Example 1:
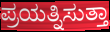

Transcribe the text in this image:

ಪ್ರಯತ್ನಿಸುತ್ತಾ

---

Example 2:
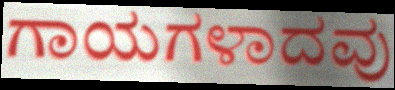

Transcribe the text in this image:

ಗಾಯಗಳಾದವು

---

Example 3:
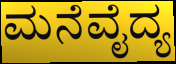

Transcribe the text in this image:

ಮನೆವೈದ್ಯ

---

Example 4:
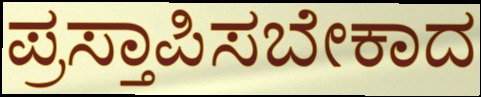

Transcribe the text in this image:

ಪ್ರಸ್ತಾಪಿಸಬೇಕಾದ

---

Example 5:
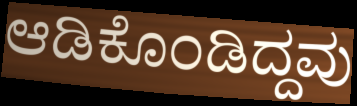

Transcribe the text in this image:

ಆಡಿಕೊಂಡಿದ್ದವು